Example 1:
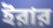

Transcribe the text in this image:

ইরার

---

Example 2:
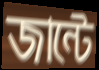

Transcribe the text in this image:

জান্টে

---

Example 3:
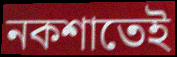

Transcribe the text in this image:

নকশাতেই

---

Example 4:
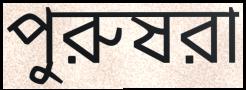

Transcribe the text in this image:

পুরুষরা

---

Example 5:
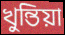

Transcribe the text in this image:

খুন্তিয়া